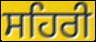
ਸਹਿਰੀ